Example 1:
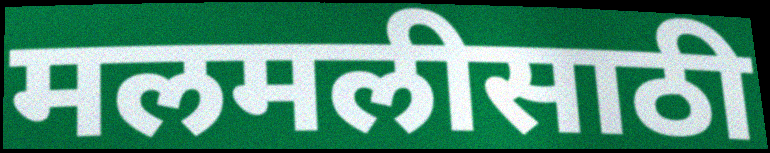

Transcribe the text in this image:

मलमलीसाठी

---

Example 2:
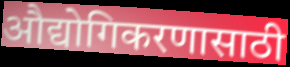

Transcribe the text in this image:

औद्योगिकरणासाठी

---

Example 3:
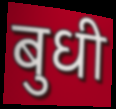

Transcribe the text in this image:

बुधी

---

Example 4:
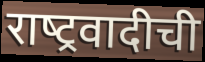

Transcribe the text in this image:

राष्ट्रवादीची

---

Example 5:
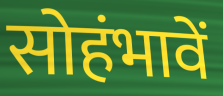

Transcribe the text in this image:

सोहंभावें